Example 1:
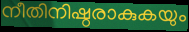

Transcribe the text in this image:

നീതിനിഷ്ഠരാകുകയും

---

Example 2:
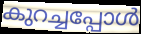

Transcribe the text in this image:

കുറച്ചപ്പോൾ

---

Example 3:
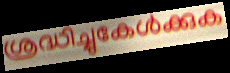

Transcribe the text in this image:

ശ്രദ്ധിച്ചുകേൾക്കുക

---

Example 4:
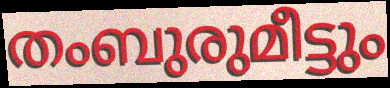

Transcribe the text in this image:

തംബുരുമീട്ടും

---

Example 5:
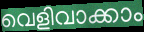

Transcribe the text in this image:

വെളിവാക്കാം